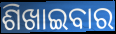
ଶିଖାଇବାର